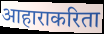
आहाराकरिता